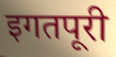
इगतपूरी